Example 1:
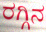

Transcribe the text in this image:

ರಗ್ಗಿನ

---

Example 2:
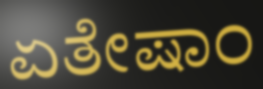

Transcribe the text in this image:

ಏತೇಷಾಂ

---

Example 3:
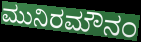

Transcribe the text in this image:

ಮುನಿರಮೌನಂ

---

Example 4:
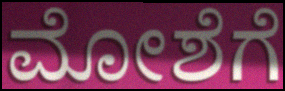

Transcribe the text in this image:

ಮೋಶೆಗೆ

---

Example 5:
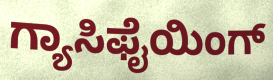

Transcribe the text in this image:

ಗ್ಯಾಸಿಫೈಯಿಂಗ್